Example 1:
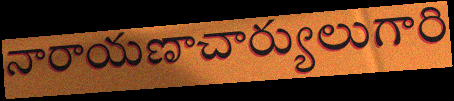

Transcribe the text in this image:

నారాయణాచార్యులుగారి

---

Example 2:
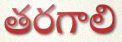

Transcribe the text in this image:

తరగాలి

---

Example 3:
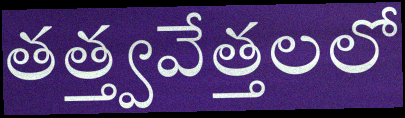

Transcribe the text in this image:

తత్త్వవేత్తలలో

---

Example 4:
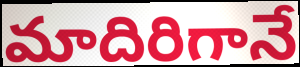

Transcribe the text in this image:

మాదిరిగానే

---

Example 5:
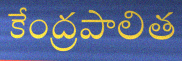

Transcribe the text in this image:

కేంద్రపాలిత